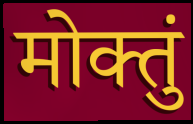
मोक्तुं